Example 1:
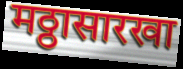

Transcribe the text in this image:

मठ्ठासारखा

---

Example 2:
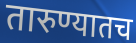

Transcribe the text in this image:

तारुण्यातच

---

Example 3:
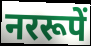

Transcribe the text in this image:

नररूपें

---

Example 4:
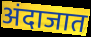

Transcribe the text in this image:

अंदाजात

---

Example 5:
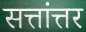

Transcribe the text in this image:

सत्तांत्तर